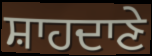
ਸ਼ਾਹਦਾਣੇ